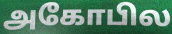
அகோபில